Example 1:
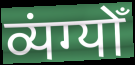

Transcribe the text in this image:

व्यंग्योँ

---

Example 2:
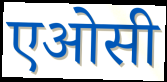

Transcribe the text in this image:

एओसी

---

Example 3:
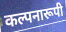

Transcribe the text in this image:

कल्पनारूपी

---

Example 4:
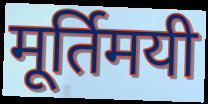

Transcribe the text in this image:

मूर्तिमयी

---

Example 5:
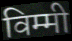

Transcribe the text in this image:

विम्मी